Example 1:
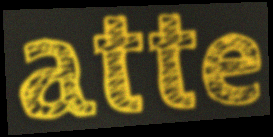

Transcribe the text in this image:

atte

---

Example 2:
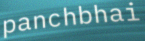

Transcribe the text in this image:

panchbhai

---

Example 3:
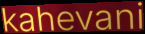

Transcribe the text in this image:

kahevani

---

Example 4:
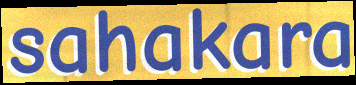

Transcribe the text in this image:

sahakara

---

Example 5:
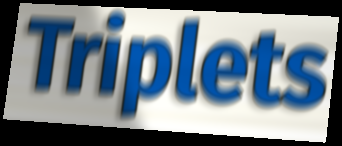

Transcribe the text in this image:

Triplets